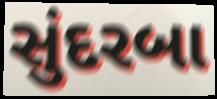
સુંદરબા